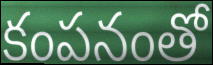
కంపనంతో